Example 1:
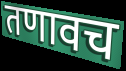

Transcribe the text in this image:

तणावच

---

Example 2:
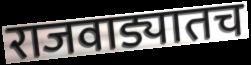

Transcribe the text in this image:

राजवाड्यातच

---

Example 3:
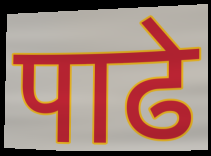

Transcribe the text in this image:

पाढे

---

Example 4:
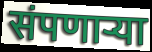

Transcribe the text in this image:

संपणाऱ्या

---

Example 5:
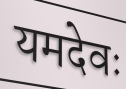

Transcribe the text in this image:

यमदेवः